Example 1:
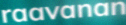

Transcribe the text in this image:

raavanan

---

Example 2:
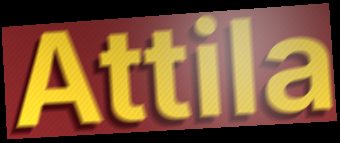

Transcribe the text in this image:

Attila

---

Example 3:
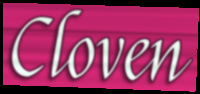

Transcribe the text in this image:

Cloven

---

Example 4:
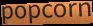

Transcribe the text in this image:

popcorn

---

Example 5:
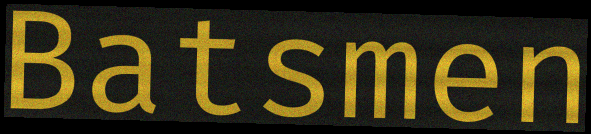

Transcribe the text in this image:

Batsmen